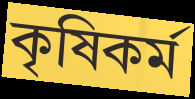
কৃষিকর্ম